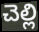
చెల్లి